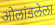
ओलांडलेला